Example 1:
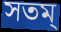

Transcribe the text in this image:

সতম্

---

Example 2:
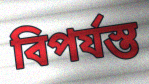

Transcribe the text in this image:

বিপৰ্যস্ত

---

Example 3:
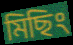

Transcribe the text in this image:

মিছিং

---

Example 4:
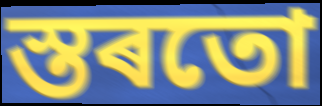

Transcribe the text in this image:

স্তৰতো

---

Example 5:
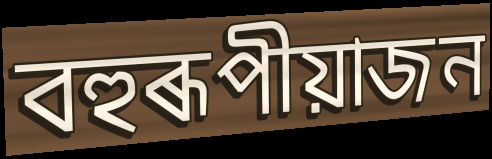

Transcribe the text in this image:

বহুৰূপীয়াজন